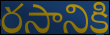
రసానికి